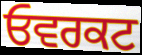
ਓਵਰਕਟ